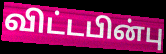
விட்டபின்பு